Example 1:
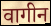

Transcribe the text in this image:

वागीन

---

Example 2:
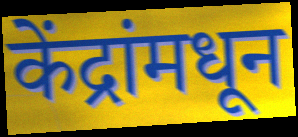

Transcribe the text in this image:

केंद्रांमधून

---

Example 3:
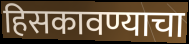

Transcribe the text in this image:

हिसकावण्याचा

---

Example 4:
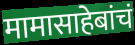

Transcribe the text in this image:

मामासाहेबांचं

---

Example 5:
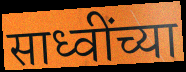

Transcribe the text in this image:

साध्वींच्या